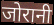
जोरानी